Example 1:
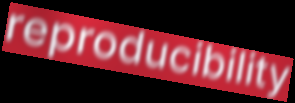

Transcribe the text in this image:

reproducibility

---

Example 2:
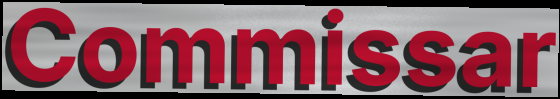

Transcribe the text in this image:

Commissar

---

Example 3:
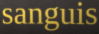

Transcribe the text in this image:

sanguis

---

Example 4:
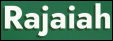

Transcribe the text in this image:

Rajaiah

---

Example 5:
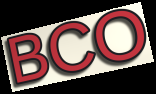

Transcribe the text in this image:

BCO